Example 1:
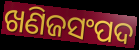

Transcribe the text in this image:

ଖଣିଜସଂପଦ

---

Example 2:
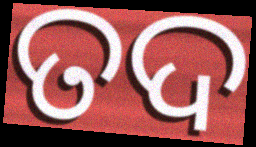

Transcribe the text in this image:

ତଦ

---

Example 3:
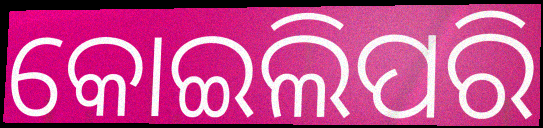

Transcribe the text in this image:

କୋଇଲିପରି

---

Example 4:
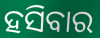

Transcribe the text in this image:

ହସିବାର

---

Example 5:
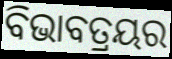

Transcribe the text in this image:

ବିଭାବତ୍ରୟର